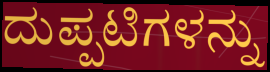
ದುಪ್ಪಟಿಗಳನ್ನು